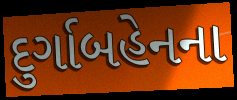
દુર્ગાબહેનના